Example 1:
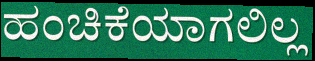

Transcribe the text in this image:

ಹಂಚಿಕೆಯಾಗಲಿಲ್ಲ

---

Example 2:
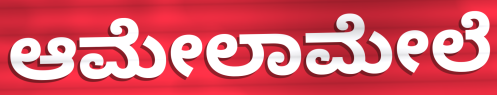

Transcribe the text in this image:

ಆಮೇಲಾಮೇಲೆ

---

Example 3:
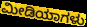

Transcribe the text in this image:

ಮೀಡಿಯಾಗಳು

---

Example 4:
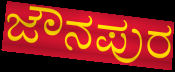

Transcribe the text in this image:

ಜೌನಪುರ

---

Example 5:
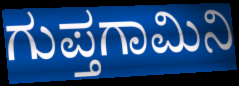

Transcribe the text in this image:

ಗುಪ್ತಗಾಮಿನಿ